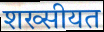
शख्सीयत